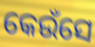
କେଉଁସେ